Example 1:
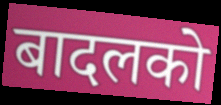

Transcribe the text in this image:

बादलको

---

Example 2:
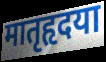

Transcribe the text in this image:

मातृहृदया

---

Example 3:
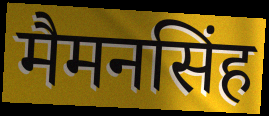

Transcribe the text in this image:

मैमनसिंह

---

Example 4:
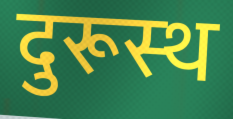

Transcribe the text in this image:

दुरूस्थ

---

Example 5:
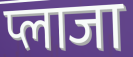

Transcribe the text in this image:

प्‍लाजा